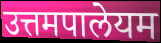
उत्तमपालेयम